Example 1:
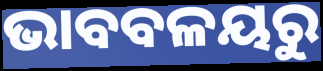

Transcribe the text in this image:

ଭାବବଳୟରୁ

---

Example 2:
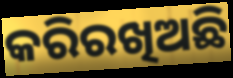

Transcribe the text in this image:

କରିରଖିଅଛି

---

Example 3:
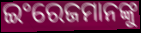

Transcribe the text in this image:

ଇଂରେଜମାନଙ୍କୁ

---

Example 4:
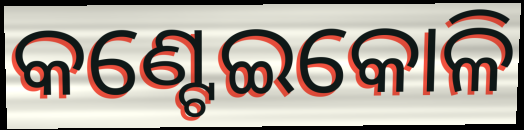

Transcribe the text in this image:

କଣ୍ଟେଇକୋଳି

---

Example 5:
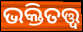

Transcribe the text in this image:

ଭକ୍ତିତତ୍ତ୍ୱ